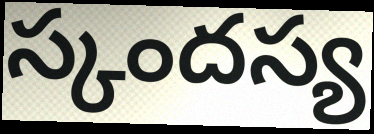
స్కందస్య